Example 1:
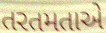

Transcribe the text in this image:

તરતમતાએ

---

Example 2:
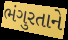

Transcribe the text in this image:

ભંગુરતાને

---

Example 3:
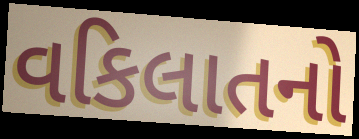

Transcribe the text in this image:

વકિલાતનો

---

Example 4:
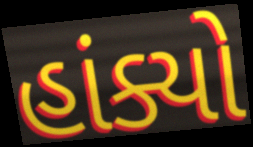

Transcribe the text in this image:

હાંક્યો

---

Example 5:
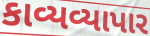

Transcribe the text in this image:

કાવ્યવ્યાપાર